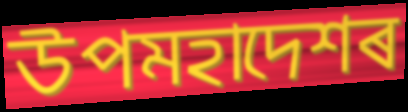
উপমহাদেশৰ